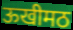
ऊखीमठ